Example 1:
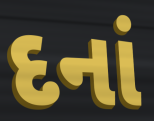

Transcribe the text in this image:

દનાં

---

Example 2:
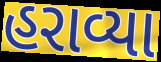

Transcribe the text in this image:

હરાવ્યા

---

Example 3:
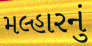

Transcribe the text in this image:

મલ્હારનું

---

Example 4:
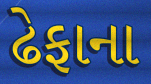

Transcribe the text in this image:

ઢેફાના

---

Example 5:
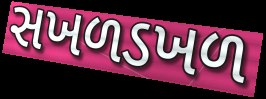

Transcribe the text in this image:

સખળડખળ